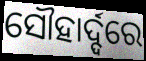
ସୌହାର୍ଦ୍ଦରେ